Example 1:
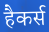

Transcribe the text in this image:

हैकर्स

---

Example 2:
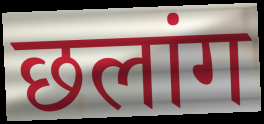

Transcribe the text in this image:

छलांग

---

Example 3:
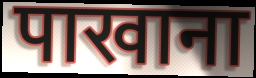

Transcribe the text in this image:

पाखाना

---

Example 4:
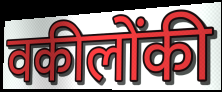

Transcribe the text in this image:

वकीलोंकी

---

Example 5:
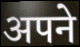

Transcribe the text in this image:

अपने